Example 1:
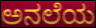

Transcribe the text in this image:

ಅನಲೆಯ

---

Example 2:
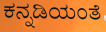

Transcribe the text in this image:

ಕನ್ನಡಿಯಂತೆ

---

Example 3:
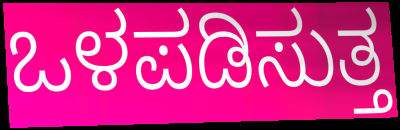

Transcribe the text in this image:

ಒಳಪಡಿಸುತ್ತ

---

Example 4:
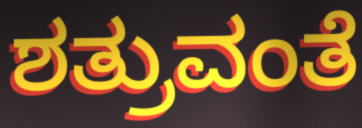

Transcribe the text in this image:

ಶತ್ರುವಂತೆ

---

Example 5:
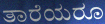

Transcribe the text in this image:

ತಾರೆಯರೂ